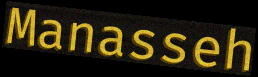
Manasseh